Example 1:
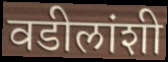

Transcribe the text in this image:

वडीलांशी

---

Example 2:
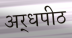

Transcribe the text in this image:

अर्धपीठ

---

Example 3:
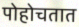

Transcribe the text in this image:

पोहोचतात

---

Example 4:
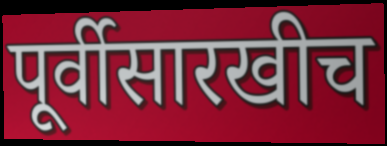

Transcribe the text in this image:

पूर्वीसारखीच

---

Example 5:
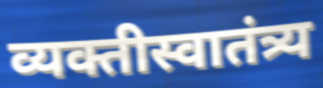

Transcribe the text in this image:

व्यक्तीस्वातंत्र्य